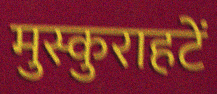
मुस्कुराहटें